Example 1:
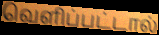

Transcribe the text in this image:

வெளிப்பட்டால்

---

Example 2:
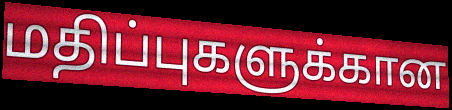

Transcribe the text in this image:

மதிப்புகளுக்கான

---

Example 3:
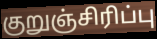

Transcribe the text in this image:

குறுஞ்சிரிப்பு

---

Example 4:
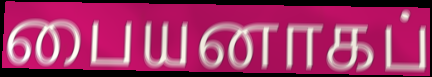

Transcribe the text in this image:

பையனாகப்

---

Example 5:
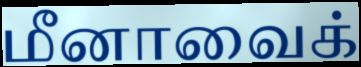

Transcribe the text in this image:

மீனாவைக்